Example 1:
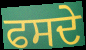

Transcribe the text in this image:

ਫਸਦੇ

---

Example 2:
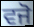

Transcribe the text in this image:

ਵਜੋ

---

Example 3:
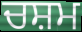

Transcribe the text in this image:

ਚਸ਼ਮ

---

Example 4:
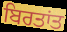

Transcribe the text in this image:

ਬਿਰਤਾਂਤ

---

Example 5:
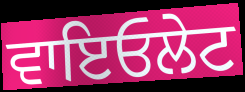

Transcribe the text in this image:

ਵਾਇਓਲੇਟ